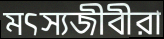
মৎস্যজীবীরা